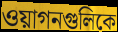
ওয়াগনগুলিকে